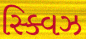
સ્ક્વિઝ